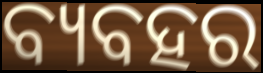
ବ୍ୟବହର